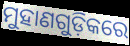
ମୁହାଣଗୁଡ଼ିକରେ